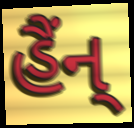
હૈંન્